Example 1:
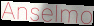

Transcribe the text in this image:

Anselmo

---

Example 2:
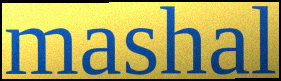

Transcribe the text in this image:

mashal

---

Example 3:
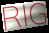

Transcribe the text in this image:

RIG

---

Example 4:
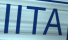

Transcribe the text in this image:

IITA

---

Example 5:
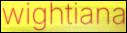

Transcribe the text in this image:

wightiana